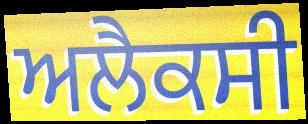
ਅਲੈਕਸੀ